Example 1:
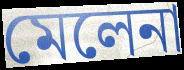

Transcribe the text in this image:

মেলেনা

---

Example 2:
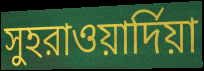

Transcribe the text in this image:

সুহরাওয়ার্দিয়া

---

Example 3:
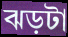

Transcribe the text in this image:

ঝড়টা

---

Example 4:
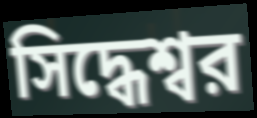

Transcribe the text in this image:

সিদ্ধেশ্বর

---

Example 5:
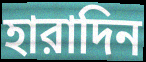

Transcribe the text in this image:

হারাদিন